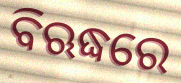
ବିଋଦ୍ଧରେ